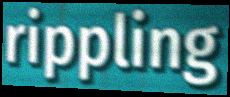
rippling